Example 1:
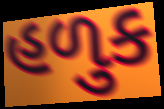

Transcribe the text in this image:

હળુક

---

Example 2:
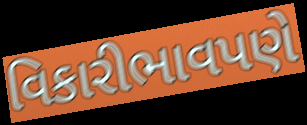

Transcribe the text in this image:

વિકારીભાવપણે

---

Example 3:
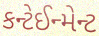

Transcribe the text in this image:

કન્ટેઈન્મેન્ટ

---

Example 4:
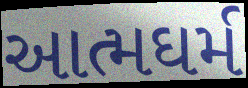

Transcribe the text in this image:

આત્મઘર્મ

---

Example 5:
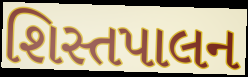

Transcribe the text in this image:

શિસ્તપાલન